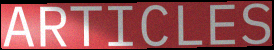
ARTICLES